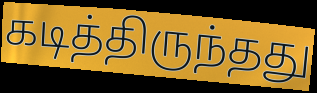
கடித்திருந்தது